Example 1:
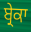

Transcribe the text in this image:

ਬ੍ਰੇਕਾ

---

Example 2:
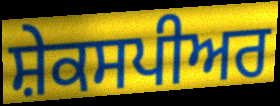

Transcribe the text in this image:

ਸ਼ੇਕਸਪੀਅਰ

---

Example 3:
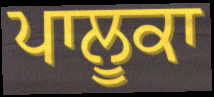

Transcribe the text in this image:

ਪਾਲੂਕਾ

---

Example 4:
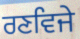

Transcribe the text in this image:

ਰਣਵਿਜੇ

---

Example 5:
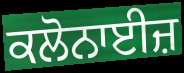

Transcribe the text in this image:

ਕਲੋਨਾਈਜ਼